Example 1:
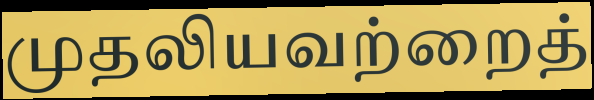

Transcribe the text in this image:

முதலியவற்றைத்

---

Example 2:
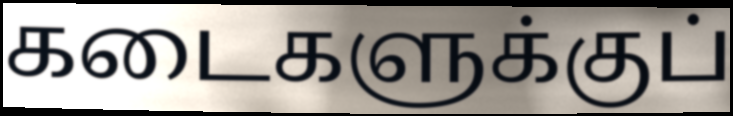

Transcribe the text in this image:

கடைகளுக்குப்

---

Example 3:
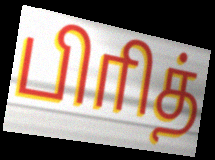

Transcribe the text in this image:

பிரித்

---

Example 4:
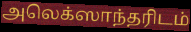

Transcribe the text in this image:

அலெக்ஸாந்தரிடம்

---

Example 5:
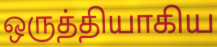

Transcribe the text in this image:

ஒருத்தியாகிய